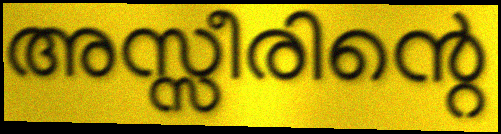
അസ്സീരിന്റെ